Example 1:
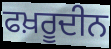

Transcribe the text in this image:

ਫਖ਼ਰੂਦੀਨ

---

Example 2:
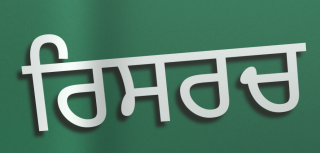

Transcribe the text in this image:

ਰਿਸਰਚ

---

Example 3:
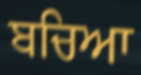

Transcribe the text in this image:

ਬਚਿਆ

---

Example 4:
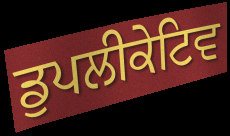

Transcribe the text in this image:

ਡੁਪਲੀਕੇਟਿਵ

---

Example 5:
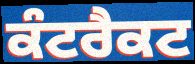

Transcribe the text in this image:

ਕੰਟਰੈਕਟ